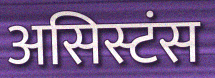
असिस्टंस